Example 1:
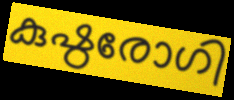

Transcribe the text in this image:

കുഷ്ഠരോഗി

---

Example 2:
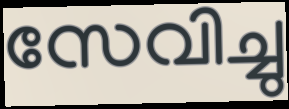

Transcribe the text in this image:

സേവിച്ചു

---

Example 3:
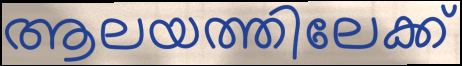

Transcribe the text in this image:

ആലയത്തിലേക്ക്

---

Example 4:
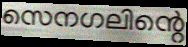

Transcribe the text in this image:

സെനഗലിന്റെ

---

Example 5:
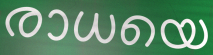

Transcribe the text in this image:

രാധയെ